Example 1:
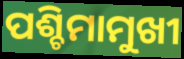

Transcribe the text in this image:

ପଶ୍ଚିମାମୁଖୀ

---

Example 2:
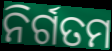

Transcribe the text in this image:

ନିର୍ଗତମ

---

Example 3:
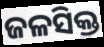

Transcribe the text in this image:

ଜଳସିକ୍ତ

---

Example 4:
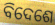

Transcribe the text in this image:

ବିଦେଶେ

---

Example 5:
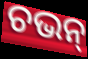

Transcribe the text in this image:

ଚଭନ୍